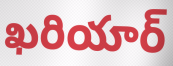
ఖరియార్